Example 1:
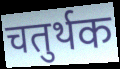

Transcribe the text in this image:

चतुर्थक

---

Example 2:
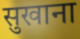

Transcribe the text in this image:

सुखाना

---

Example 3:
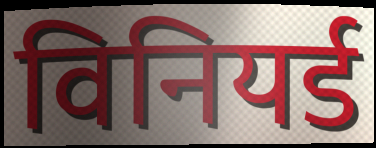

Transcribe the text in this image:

विनियर्ड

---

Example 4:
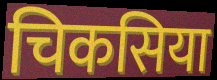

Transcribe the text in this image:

चिकसिया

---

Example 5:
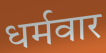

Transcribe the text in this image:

धर्मवार